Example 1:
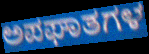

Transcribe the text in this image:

ಅಪಘಾತಗಳ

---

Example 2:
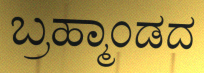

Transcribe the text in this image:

ಬ್ರಹ್ಮಾಂಡದ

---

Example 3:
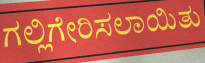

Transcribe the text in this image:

ಗಲ್ಲಿಗೇರಿಸಲಾಯಿತು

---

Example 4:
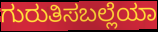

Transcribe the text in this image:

ಗುರುತಿಸಬಲ್ಲೆಯಾ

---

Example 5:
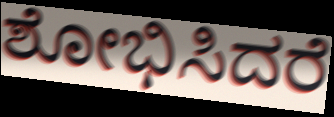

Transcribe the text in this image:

ಶೋಭಿಸಿದರೆ